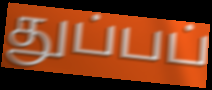
துப்பப்